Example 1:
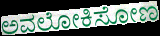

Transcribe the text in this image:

ಅವಲೋಕಿಸೋಣ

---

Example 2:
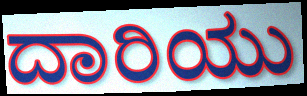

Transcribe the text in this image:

ದಾರಿಯು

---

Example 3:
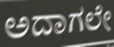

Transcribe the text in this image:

ಅದಾಗಲೇ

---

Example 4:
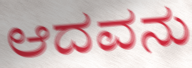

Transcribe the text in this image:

ಆದವನು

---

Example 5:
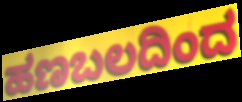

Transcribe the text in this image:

ಹಣಬಲದಿಂದ